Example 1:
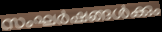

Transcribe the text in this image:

സംഘർഷങ്ങൾക്കും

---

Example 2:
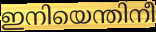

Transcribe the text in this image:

ഇനിയെന്തിനീ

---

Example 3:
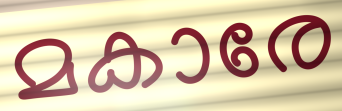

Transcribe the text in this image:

മകാരേ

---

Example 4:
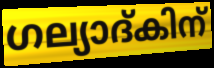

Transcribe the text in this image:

ഗല്യാദ്കിന്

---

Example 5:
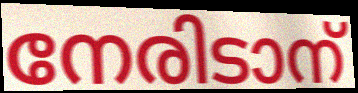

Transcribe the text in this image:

നേരിടാന്